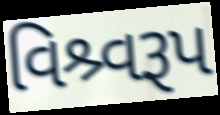
વિશ્ર્વરૂપ